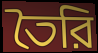
তৈরি